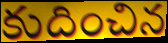
కుదించిన